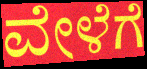
ವೇಳೆಗೆ